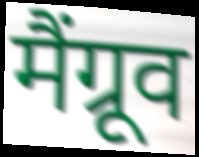
मैंग्रूव